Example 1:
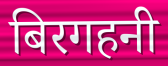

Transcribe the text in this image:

बिरगहनी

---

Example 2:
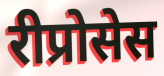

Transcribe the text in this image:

रीप्रोसेस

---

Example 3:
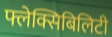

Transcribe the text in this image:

फ्लेक्सिबिलिटी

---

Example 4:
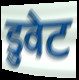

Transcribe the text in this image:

डुवेट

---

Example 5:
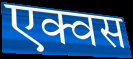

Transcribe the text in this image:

एक्वस